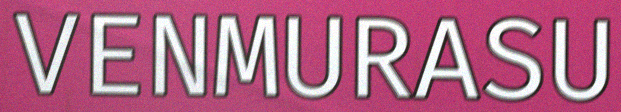
VENMURASU